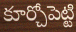
కూర్చోపెట్టి